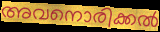
അവനൊരിക്കൽ